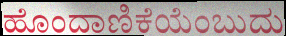
ಹೊಂದಾಣಿಕೆಯೆಂಬುದು